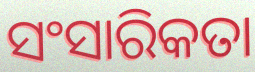
ସଂସାରିକତା